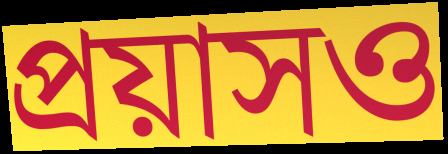
প্রয়াসও